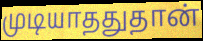
முடியாததுதான்